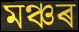
মঞ্চৰ